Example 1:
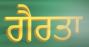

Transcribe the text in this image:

ਗੈਰਤਾ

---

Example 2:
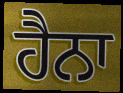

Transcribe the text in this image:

ਹੈਨਾ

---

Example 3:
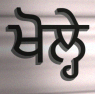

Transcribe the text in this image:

ਖੋਲ੍ਹੇ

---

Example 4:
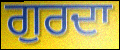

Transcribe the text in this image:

ਗੁਰਦਾ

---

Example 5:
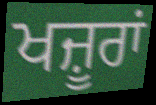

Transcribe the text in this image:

ਖਜ਼ੂਰਾਂ